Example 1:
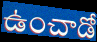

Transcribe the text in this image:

ఉంచాడో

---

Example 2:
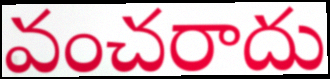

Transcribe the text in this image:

వంచరాదు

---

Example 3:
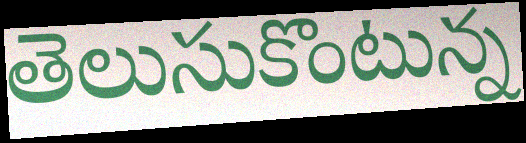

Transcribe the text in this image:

తెలుసుకొంటున్న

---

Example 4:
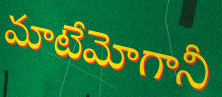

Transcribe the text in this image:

మాటేమోగానీ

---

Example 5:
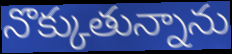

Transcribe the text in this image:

నొక్కుతున్నాను